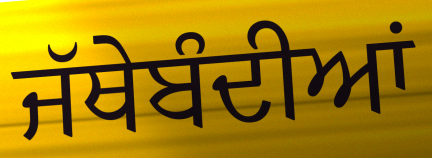
ਜੱਥੇਬੰਦੀਆਂ